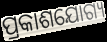
ପ୍ରକାଶଯୋଗ୍ୟ